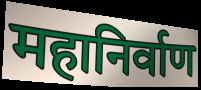
महानिर्वाण